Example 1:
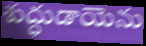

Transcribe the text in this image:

శుద్ధుడాయెను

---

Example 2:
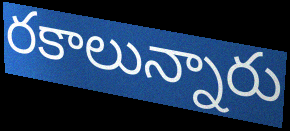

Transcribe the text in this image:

రకాలున్నారు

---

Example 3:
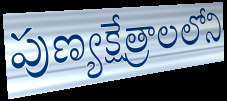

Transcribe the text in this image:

పుణ్యక్షేత్రాలలోని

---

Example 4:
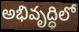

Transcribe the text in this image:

అభివృద్ధిలో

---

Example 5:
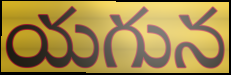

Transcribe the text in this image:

యగున